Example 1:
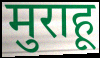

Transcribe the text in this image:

मुराहू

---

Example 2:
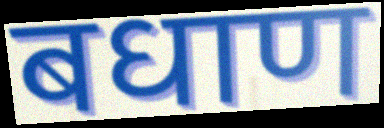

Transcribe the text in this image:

बधाण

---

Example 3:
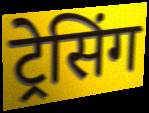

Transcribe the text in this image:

ट्रेसिंग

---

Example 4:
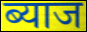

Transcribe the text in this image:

ब्‍याज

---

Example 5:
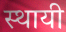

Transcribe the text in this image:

स्‍थायी